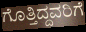
ಗೊತ್ತಿದ್ದವರಿಗೆ